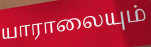
யாராலையும்